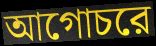
আগোচরে